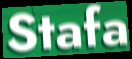
Stafa